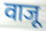
वाजू